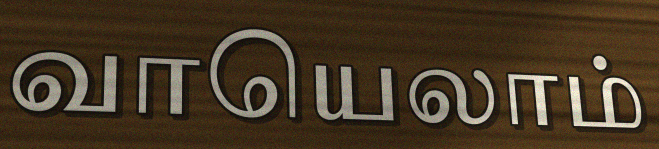
வாயெலாம்